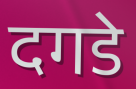
दगडे